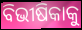
ବିଭୀଷିକାକୁ